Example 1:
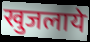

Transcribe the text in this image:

खुजलाये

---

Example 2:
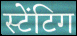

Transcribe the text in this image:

स्टेंटिग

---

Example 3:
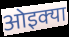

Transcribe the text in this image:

ओइक्या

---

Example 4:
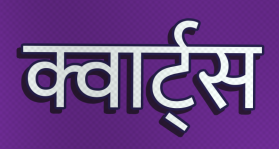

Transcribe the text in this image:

क्वार्ट्स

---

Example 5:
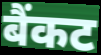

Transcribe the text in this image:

बैंकट